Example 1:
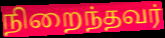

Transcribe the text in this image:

நிறைந்தவர்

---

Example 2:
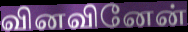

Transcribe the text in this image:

வினவினேன்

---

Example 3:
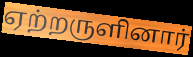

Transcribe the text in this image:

ஏற்றருளினார்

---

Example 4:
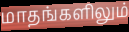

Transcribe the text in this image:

மாதங்களிலும்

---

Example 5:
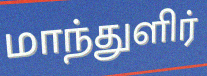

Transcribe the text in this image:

மாந்துளிர்